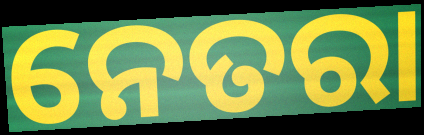
ନେତରା